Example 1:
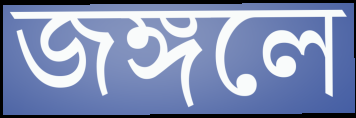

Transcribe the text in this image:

জঙ্গলে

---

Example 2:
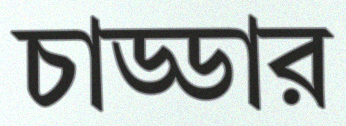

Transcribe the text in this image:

চাড্ডার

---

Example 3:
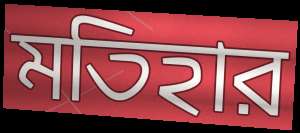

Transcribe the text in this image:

মতিহার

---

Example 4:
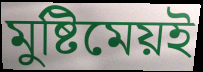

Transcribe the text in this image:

মুষ্টিমেয়ই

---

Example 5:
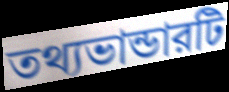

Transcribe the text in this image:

তথ্যভান্ডারটি